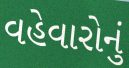
વહેવારોનું